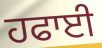
ਹਫਾਈ